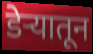
डेऱ्यातून